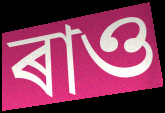
ৰাও